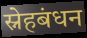
स्नेहबंधन